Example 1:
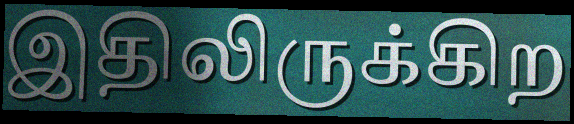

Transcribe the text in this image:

இதிலிருக்கிற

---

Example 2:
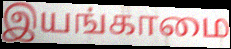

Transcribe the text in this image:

இயங்காமை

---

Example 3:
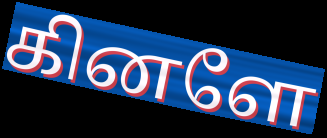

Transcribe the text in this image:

கினளே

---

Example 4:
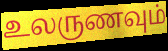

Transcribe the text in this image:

உலருணவும்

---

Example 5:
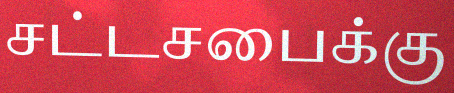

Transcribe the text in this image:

சட்டசபைக்கு